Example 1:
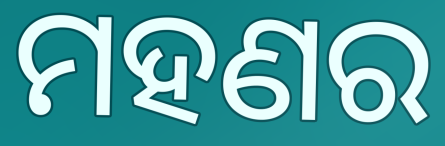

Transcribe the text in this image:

ମହଣର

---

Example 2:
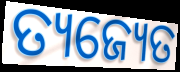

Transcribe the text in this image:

ତ୍ୟଜ୍ୟେତ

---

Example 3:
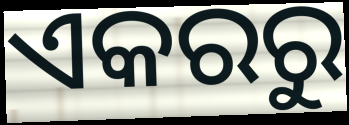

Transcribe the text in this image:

ଏକରରୁ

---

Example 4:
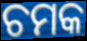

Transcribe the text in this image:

ଚମକ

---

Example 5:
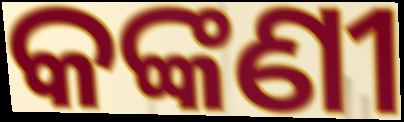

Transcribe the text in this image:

କଙ୍କଣୀ